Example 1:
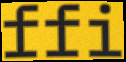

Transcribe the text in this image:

ffi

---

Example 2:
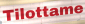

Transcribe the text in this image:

Tilottame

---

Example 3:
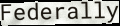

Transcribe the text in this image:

Federally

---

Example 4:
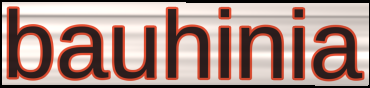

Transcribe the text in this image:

bauhinia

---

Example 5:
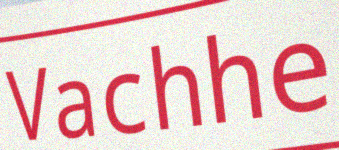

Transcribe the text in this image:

Vachhe